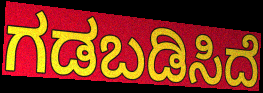
ಗಡಬಡಿಸಿದೆ